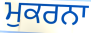
ਮੁਕਰਨਾ